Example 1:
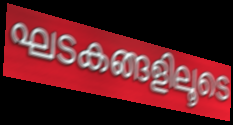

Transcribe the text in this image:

ഘടകങ്ങളിലൂടെ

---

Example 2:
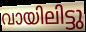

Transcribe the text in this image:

വായിലിട്ടു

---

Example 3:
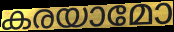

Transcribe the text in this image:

കരയാമോ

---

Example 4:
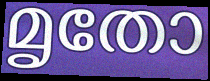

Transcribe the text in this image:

മൃതോ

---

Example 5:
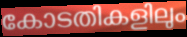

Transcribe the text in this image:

കോടതികളിലും